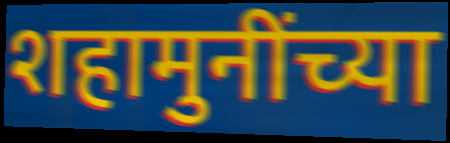
शहामुनींच्या